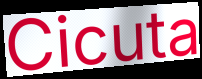
Cicuta